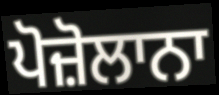
ਪੋਜ਼ੋਲਾਨਾ